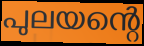
പുലയന്റെ